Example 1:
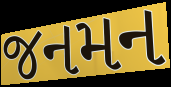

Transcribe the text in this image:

જનમન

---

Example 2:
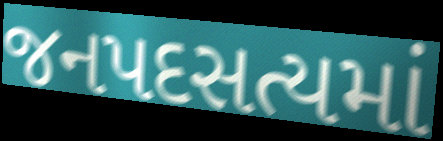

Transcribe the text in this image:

જનપદસત્યમાં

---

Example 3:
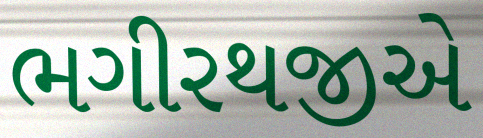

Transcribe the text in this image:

ભગીરથજીએ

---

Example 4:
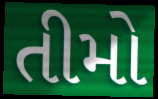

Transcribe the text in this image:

તીમો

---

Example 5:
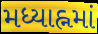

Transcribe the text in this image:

મધ્યાહ્નમાં